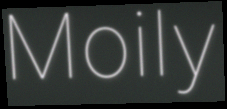
Moily